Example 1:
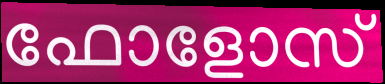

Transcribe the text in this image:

ഫോളോസ്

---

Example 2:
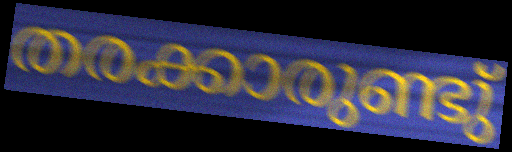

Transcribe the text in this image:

തരക്കാരുണ്ടു്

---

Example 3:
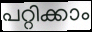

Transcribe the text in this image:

പറ്റിക്കാം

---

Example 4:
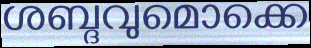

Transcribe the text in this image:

ശബ്ദവുമൊക്കെ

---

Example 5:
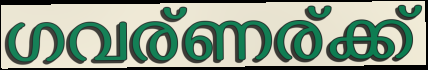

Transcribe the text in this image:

ഗവര്ണര്ക്ക്